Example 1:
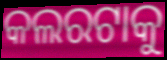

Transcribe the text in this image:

କଲରଟାକୁ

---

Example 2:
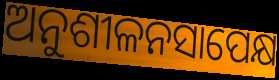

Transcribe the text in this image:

ଅନୁଶୀଳନସାପେକ୍ଷ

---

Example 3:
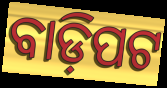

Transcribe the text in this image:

ବାଡ଼ିପଟ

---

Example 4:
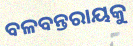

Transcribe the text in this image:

ବଳବନ୍ତରାୟକୁ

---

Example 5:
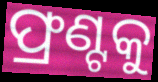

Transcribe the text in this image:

ଫ୍ରଣ୍ଟକୁ